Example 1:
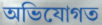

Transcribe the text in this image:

অভিযোগত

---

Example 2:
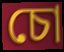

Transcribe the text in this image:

চো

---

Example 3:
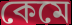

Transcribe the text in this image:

কেমে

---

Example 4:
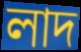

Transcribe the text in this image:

লাদ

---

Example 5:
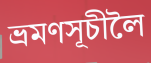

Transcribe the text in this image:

ভ্ৰমণসূচীলৈ